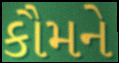
કૌમને